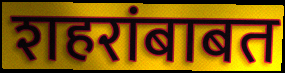
शहरांबाबत